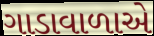
ગાડાવાળાએ